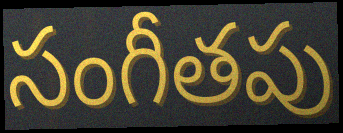
సంగీతపు